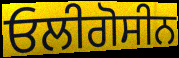
ਓਲੀਗੋਸੀਨ